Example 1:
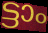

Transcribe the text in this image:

ട്ടാം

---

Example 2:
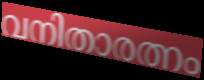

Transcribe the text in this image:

വനിതാരത്നം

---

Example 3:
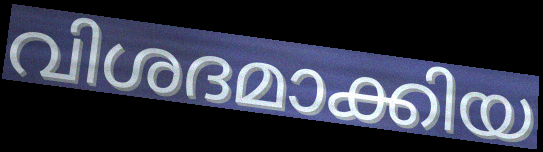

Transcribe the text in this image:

വിശദമാക്കിയ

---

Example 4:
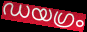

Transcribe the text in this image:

ഡയഗ്രം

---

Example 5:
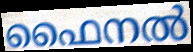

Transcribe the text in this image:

ഫൈനൽ